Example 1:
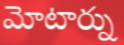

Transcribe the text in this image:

మోటార్ను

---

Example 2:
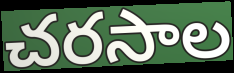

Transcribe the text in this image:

చరసాల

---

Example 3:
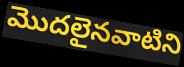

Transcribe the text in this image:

మొదలైనవాటిని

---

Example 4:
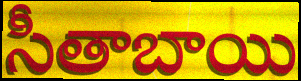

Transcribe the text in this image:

సీతాబాయి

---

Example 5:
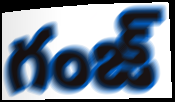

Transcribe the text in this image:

గంజ్